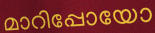
മാറിപ്പോയോ